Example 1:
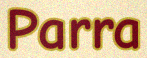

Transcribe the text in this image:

Parra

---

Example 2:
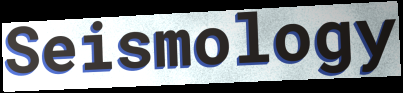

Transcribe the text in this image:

Seismology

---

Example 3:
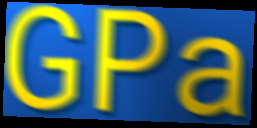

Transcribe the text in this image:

GPa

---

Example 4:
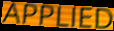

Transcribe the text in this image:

APPLIED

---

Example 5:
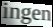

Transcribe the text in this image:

ingen